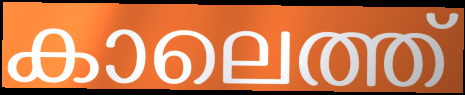
കാലെത്ത്